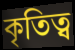
কৃতিত্ব